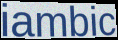
iambic